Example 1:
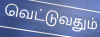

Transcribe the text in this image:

வெட்டுவதும்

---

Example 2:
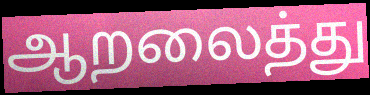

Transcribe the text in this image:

ஆறலைத்து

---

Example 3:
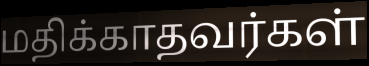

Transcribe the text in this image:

மதிக்காதவர்கள்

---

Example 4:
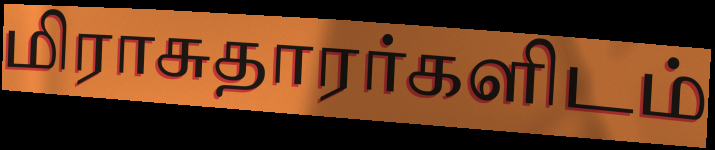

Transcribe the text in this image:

மிராசுதாரர்களிடம்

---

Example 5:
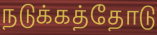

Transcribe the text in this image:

நடுக்கத்தோடு